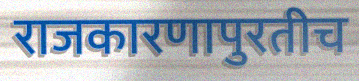
राजकारणापुरतीच